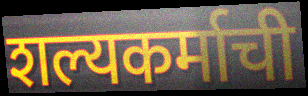
शल्यकर्माची